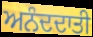
ਅਨੰਦਦਾਤੀ